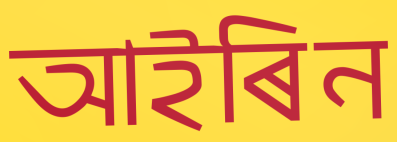
আইৰিন